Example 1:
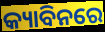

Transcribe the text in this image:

କ୍ୟାବିନରେ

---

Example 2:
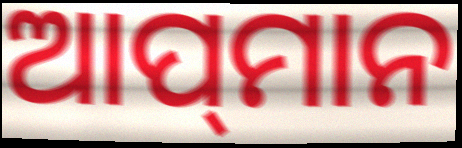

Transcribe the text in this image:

ଆପ୍‌ମାନ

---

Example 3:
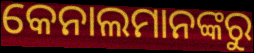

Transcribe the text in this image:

କେନାଲମାନଙ୍କରୁ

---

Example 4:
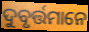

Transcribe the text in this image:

ଦୁବୃର୍ତ୍ତମାନେ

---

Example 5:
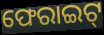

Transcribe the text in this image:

ଫେରାଇଟ୍